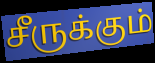
சீருக்கும்